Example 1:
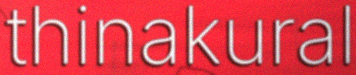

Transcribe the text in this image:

thinakural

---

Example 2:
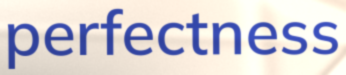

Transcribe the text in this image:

perfectness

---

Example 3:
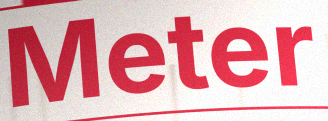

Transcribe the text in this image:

Meter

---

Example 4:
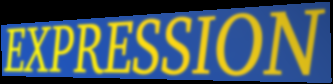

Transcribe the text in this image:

EXPRESSION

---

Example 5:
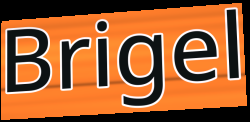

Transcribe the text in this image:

Brigel